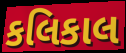
કલિકાલ